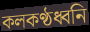
কলকণ্ঠধ্বনি